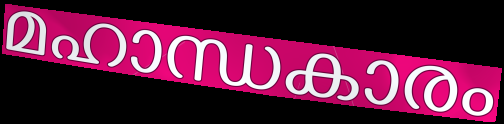
മഹാന്ധകാരം